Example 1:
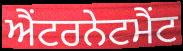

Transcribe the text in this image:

ਐਂਟਰਨੇਟਮੈਂਟ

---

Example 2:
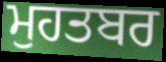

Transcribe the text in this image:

ਮੁਹਤਬਰ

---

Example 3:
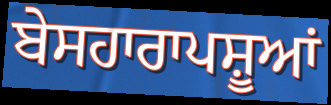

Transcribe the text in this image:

ਬੇਸਹਾਰਾਪਸ਼ੂਆਂ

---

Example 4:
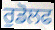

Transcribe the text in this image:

ਰੁਡੋਲਫ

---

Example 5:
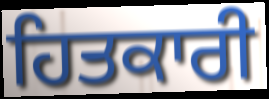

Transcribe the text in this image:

ਹਿਤਕਾਰੀ